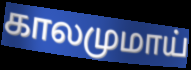
காலமுமாய்